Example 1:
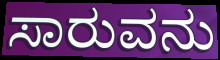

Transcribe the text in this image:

ಸಾರುವನು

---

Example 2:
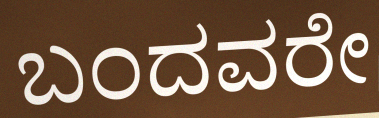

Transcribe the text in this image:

ಬಂದವರೇ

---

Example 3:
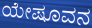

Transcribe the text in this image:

ಯೇಷೂವನ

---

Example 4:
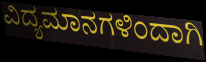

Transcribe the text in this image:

ವಿದ್ಯಮಾನಗಳಿಂದಾಗಿ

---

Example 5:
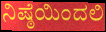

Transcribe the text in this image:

ನಿಷ್ಠೆಯಿಂದಲಿ